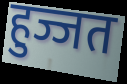
हुज्जत